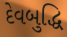
દેવબુદ્ધિ